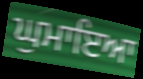
ਘੁਮਾਇਆ